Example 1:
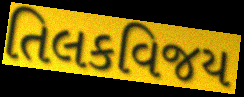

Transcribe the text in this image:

તિલકવિજય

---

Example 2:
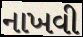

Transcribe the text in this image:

નાખવી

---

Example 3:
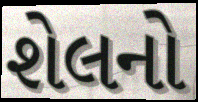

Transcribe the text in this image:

શેલનો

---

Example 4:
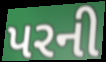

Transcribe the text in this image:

પરની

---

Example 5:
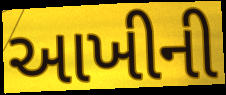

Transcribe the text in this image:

આખીની